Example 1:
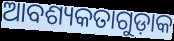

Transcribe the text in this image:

ଆବଶ୍ୟକତାଗୁଡ଼ାକ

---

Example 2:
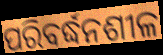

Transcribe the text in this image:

ପରିବର୍ଦ୍ଧନଶୀଳ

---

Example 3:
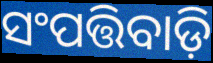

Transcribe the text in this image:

ସଂପତ୍ତିବାଡ଼ି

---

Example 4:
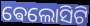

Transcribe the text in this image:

ଵେଲୋସିଟି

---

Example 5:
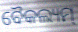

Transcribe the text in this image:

ବୈକଲ୍ୟମ୍